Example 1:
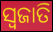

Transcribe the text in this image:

ସ୍ୱଜାତି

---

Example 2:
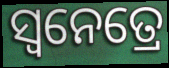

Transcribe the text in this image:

ସ୍ୱନେତ୍ରେ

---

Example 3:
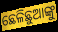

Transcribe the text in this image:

ଛେଳିଛୁଆଙ୍କୁ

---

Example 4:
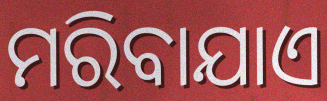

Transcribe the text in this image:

ମରିବାଯାଏ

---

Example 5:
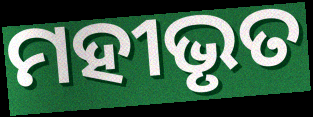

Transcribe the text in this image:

ମହୀଭୃତ